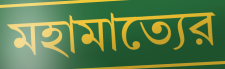
মহামাত্যের